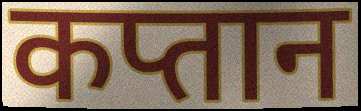
कप्तान